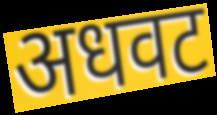
अधवट